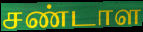
சண்டாள